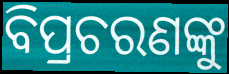
ବିପ୍ରଚରଣଙ୍କୁ